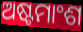
ଅଷ୍ଟମାଂଶ